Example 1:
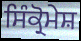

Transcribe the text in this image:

ਸਿੰਕ੍ਰੋਮੇਸ਼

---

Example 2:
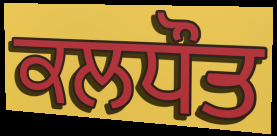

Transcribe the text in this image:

ਕਲਧੌਤ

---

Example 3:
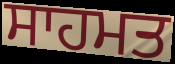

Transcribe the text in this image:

ਸਾਹਮਤ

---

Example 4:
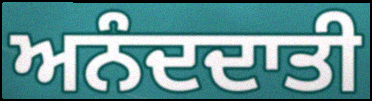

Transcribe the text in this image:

ਅਨੰਦਦਾਤੀ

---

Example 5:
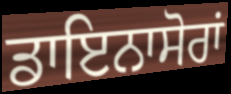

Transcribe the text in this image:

ਡਾਇਨਾਸੋਰਾਂ